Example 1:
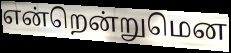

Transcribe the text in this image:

என்றென்றுமென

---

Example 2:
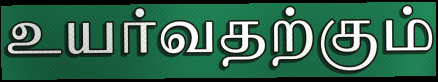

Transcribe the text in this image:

உயர்வதற்கும்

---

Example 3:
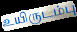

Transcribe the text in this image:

உயிருடம்பு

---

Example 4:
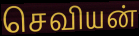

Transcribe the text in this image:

செவியன்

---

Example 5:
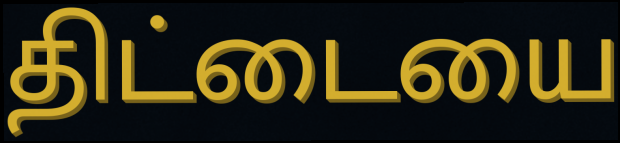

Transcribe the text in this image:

திட்டையை